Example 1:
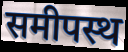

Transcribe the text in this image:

समीपस्थ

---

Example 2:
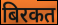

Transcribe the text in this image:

बिरकत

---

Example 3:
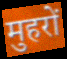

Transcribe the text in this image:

मुहरों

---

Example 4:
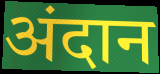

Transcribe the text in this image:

अंदान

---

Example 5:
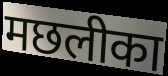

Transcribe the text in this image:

मछलीका